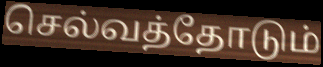
செல்வத்தோடும்